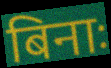
बिनाः